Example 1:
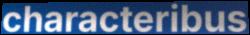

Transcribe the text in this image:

characteribus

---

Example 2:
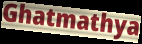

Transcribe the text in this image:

Ghatmathya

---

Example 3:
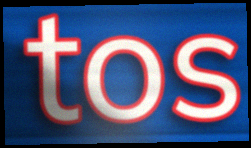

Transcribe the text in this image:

tos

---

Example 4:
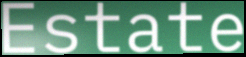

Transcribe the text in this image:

Estate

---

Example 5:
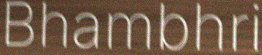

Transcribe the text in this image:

Bhambhri